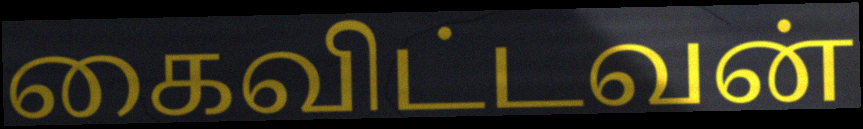
கைவிட்டவன்